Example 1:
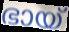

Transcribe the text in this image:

ഭായ്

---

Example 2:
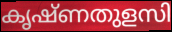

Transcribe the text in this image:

കൃഷ്ണതുളസി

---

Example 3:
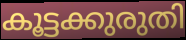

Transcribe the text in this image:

കൂട്ടക്കുരുതി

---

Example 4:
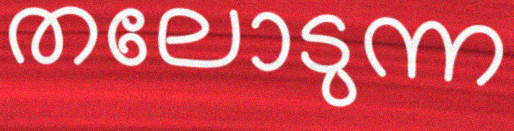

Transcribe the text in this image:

തലോടുന്ന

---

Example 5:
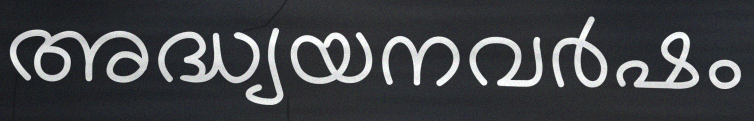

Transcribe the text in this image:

അദ്ധ്യയനവർഷം